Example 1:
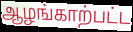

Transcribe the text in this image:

ஆழங்காற்பட்ட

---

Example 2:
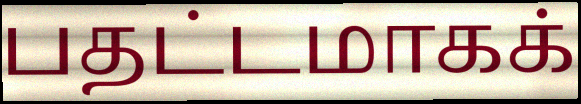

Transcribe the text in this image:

பதட்டமாகக்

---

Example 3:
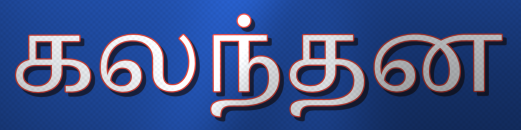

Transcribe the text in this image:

கலந்தன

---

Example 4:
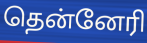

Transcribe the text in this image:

தென்னேரி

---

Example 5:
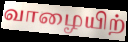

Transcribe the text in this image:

வாழையிற்